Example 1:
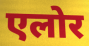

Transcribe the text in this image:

एलोर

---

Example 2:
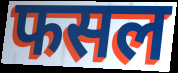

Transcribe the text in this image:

फसल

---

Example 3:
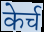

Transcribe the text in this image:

केर्च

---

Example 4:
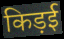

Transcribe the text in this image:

किड़ई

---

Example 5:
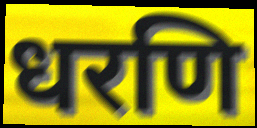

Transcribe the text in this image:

धरणि